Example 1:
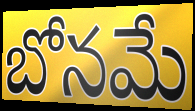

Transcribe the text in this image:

బోనమే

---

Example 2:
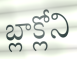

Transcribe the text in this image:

బ్లాక్లోని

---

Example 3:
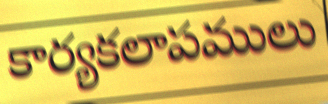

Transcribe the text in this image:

కార్యకలాపములు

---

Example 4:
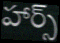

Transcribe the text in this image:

హార్స్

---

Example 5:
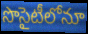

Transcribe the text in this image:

సొసైటీలోనూ